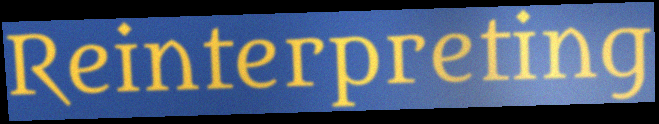
Reinterpreting